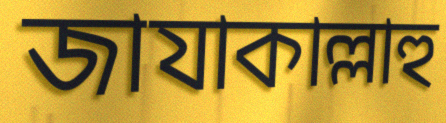
জাযাকাল্লাহু